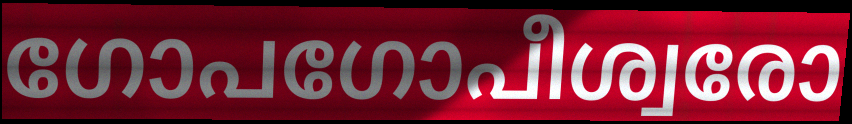
ഗോപഗോപീശ്വരോ